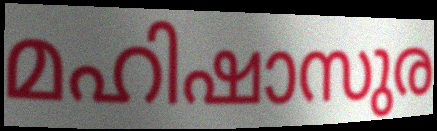
മഹിഷാസുര